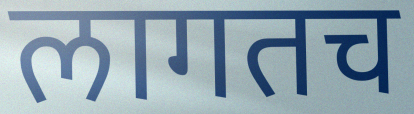
लागतच